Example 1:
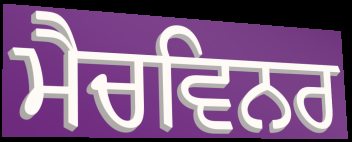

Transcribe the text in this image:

ਮੈਚਵਿਨਰ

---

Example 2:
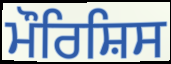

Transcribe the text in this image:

ਮੌਰਿਸ਼ਿਸ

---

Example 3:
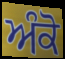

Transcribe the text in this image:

ਅੰਕੋ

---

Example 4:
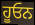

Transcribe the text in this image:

ਹੂਓਨ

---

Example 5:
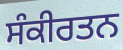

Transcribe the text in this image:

ਸੰਕੀਰਤਨ